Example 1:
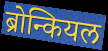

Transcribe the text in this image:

ब्रोन्कियल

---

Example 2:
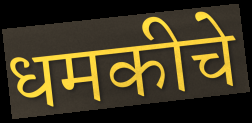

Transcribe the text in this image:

धमकीचे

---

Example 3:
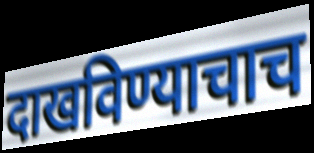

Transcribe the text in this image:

दाखविण्याचाच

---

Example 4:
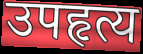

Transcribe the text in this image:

उपहृत्य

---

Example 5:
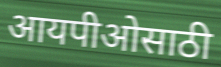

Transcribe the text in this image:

आयपीओसाठी